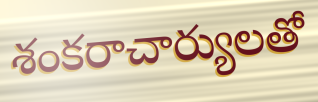
శంకరాచార్యులతో